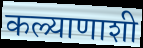
कल्याणाशी